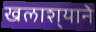
खलाश्याने